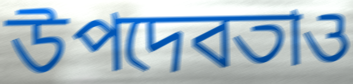
উপদেবতাও